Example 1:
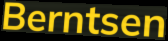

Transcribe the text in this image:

Berntsen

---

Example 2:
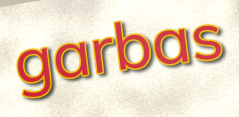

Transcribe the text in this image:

garbas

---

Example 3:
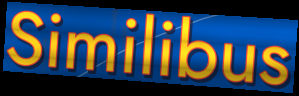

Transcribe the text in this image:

Similibus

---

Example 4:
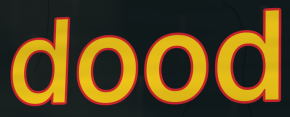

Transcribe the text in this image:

dood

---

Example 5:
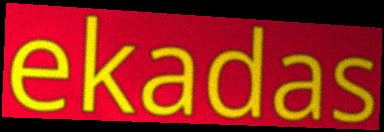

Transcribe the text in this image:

ekadas